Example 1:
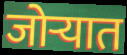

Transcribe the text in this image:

जोऱ्यात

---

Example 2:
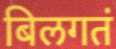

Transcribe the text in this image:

बिलगतं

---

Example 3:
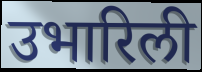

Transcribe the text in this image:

उभारिली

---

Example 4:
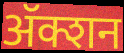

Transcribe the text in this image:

ॲक्शन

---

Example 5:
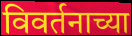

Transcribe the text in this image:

विवर्तनाच्या